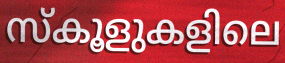
സ്കൂളുകളിലെ